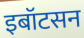
इबॉटसन